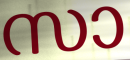
സാ